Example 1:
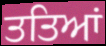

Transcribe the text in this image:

ਤਤਿਆਂ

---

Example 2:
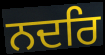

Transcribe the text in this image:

ਨਦਰਿ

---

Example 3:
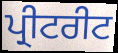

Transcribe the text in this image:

ਪ੍ਰੀਟਰੀਟ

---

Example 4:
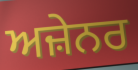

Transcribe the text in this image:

ਅਜ਼ੇਨਰ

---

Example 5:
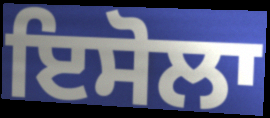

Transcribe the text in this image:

ਇਸੋਲਾ